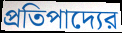
প্রতিপাদ্যের